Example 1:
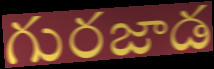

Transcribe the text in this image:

గురజాడ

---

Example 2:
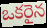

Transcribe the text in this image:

ఒకరైన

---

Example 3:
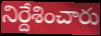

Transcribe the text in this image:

నిర్దేశించారు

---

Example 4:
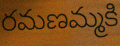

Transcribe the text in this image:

రమణమ్మకి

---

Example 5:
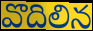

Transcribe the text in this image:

వొదిలిన